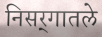
निसर्गातले